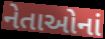
નેતાઓનાં